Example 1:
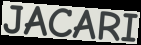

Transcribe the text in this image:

JACARI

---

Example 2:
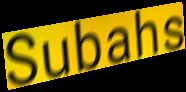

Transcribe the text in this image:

Subahs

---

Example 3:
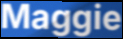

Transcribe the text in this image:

Maggie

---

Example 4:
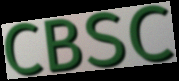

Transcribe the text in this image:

CBSC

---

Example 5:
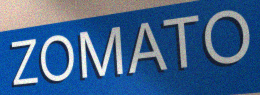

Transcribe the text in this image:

ZOMATO